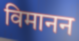
विमानन